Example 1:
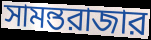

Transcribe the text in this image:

সামন্তরাজার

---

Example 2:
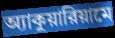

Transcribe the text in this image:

অ্যাকুয়ারিয়ামে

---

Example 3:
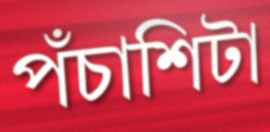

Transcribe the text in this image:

পঁচাশিটা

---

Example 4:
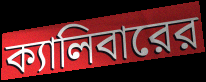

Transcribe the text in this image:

ক্যালিবারের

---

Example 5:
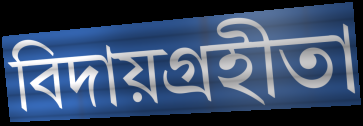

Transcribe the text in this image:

বিদায়গ্রহীতা